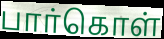
பார்கொள்